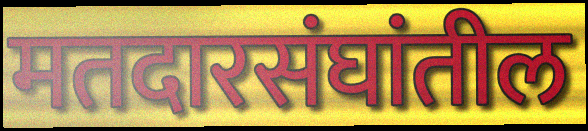
मतदारसंघांतील